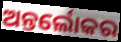
ଅନ୍ତର୍ଲୋକର